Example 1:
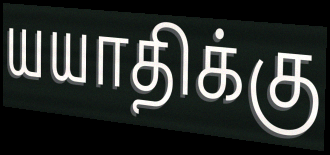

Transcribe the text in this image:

யயாதிக்கு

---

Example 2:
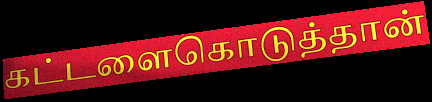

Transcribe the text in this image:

கட்டளைகொடுத்தான்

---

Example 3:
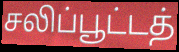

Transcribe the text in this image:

சலிப்பூட்டத்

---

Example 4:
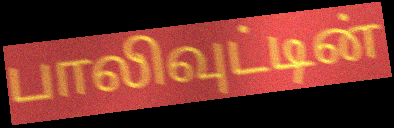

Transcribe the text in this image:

பாலிவுட்டின்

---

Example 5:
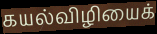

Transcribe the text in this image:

கயல்விழியைக்